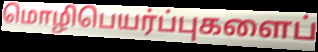
மொழிபெயர்ப்புகளைப்